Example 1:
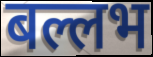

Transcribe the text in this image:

बल्लभ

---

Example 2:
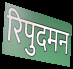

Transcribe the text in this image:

रिपुदमन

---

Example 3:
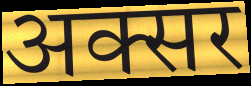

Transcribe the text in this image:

अक्सर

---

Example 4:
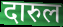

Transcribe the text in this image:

दारुल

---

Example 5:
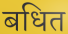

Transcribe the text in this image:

बधित